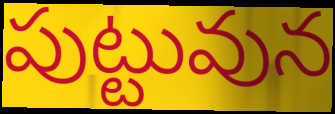
పుట్టువున